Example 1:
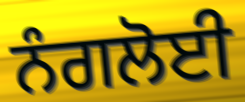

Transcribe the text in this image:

ਨੰਗਲੋਈ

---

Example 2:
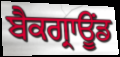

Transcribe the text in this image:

ਬੈਕਗ੍ਰਾਊਂਡ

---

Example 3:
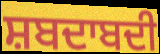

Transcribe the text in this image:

ਸ਼ਬਦਾਬਦੀ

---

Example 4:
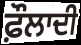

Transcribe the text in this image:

ਫ਼ੌਲਾਦੀ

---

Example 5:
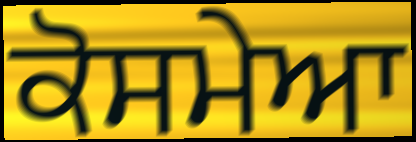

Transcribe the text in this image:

ਕੋਸਮੇਆ